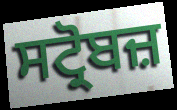
ਸਟ੍ਰੋਬਜ਼